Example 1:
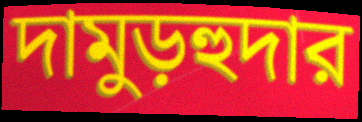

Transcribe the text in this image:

দামুড়হুদার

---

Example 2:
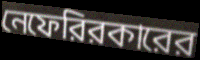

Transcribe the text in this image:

নেফেরিরকারের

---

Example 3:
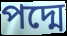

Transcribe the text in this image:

পদ্মে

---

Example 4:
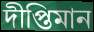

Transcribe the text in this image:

দীপ্তিমান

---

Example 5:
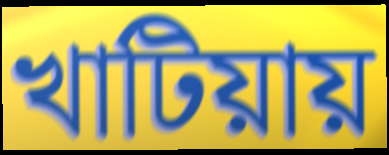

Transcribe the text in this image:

খাটিয়ায়